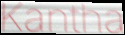
Kantha